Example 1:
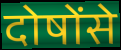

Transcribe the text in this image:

दोषोंसे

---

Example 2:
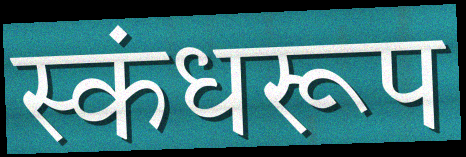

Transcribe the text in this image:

स्कंधरूप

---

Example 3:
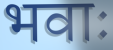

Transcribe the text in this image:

भवाः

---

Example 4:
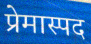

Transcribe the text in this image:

प्रेमास्पद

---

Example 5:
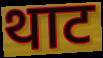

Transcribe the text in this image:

थाट